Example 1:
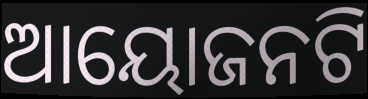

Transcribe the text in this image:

ଆୟୋଜନଟି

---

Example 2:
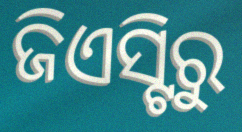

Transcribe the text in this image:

ଜିଏସ୍ଟିରୁ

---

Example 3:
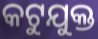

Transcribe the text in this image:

କଟୁଯୁକ୍ତ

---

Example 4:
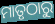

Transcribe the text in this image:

ମାତୃଠାରୁ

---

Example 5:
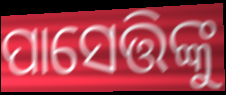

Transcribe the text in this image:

ପାସେତ୍ତିଙ୍କୁ